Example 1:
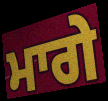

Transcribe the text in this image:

ਮਾਗੇ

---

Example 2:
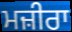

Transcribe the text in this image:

ਮਜ਼ੀਰਾ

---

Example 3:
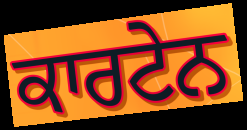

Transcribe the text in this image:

ਕਾਰਟੇਨ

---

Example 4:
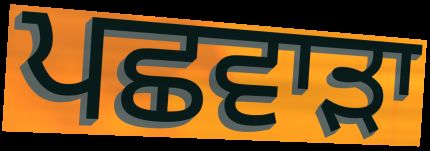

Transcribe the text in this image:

ਪਛਵਾੜਾ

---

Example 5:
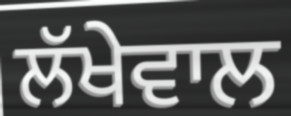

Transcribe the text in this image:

ਲੱਖੇਵਾਲ